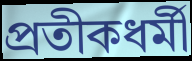
প্রতীকধর্মী